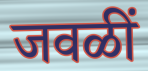
जवळीं